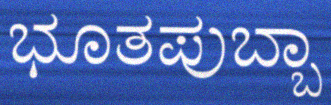
ಭೂತಪುಬ್ಬಾ